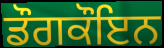
ਡੌਗਕੌਇਨ